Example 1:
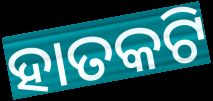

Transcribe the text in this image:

ହାତକଟି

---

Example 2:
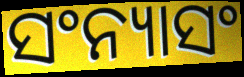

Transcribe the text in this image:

ସଂନ୍ୟାସଂ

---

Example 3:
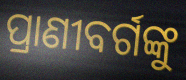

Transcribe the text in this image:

ପ୍ରାଣୀବର୍ଗଙ୍କୁ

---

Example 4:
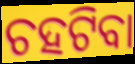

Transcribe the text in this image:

ଚହଟିବା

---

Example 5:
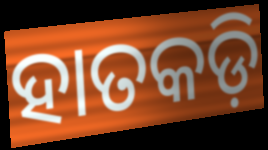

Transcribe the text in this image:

ହାତକଡ଼ି